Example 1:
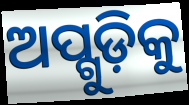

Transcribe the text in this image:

ଅପ୍ଗୁଡ଼ିକୁ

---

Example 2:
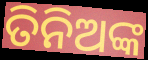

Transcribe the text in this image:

ତିନିଅଙ୍କ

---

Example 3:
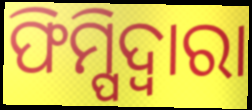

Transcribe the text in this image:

ଫିମ୍ପିଦ୍ଵାରା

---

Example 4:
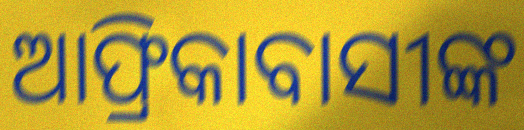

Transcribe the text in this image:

ଆଫ୍ରିକାବାସୀଙ୍କ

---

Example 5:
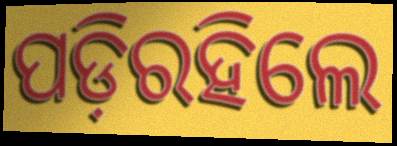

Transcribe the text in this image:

ପଡ଼ିରହିଲେ